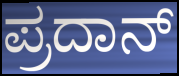
ಪ್ರದಾನ್